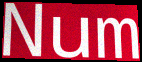
Num